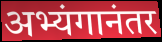
अभ्यंगानंतर